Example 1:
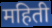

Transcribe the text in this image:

महिती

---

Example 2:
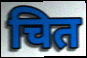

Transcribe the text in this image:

चित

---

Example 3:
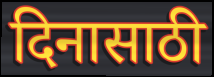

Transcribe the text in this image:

दिनासाठी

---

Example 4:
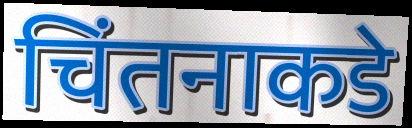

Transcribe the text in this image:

चिंतनाकडे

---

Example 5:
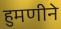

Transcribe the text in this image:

हुमणीने